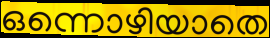
ഒന്നൊഴിയാതെ